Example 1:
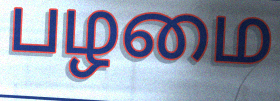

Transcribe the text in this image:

பழமை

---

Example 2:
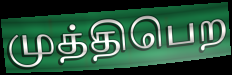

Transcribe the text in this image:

முத்திபெற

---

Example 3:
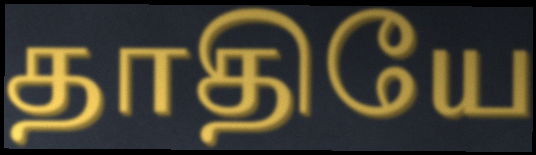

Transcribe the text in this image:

தாதியே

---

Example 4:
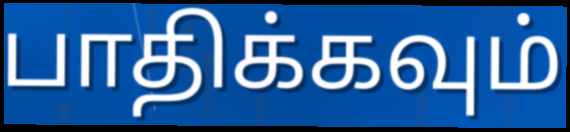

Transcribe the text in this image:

பாதிக்கவும்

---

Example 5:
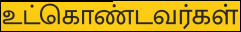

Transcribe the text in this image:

உட்கொண்டவர்கள்